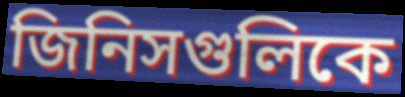
জিনিসগুলিকে